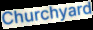
Churchyard